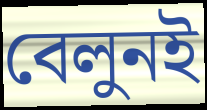
বেলুনই